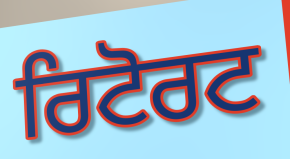
ਰਿਟੋਰਟ